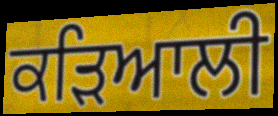
ਕੜਿਆਲੀ